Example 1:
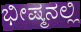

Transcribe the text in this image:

ಭೀಷ್ಮನಲ್ಲಿ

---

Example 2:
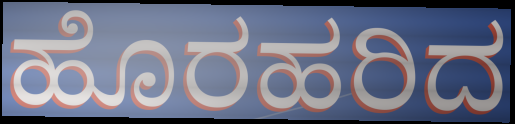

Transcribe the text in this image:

ಹೊರಹರಿದ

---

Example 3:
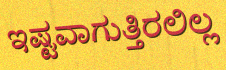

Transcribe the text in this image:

ಇಷ್ಟವಾಗುತ್ತಿರಲಿಲ್ಲ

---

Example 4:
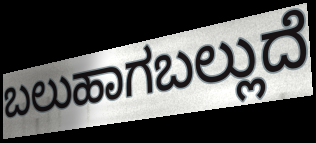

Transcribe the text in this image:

ಬಲುಹಾಗಬಲ್ಲುದೆ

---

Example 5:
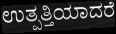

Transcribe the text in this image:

ಉತ್ಪತ್ತಿಯಾದರೆ